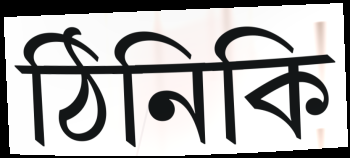
ঠিনিকি